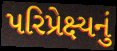
પરિપ્રેક્ષ્યનું